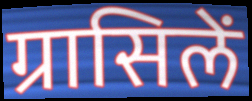
ग्रासिलें